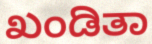
ಖಂಡಿತಾ